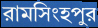
রামসিংহপুর